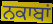
ਨਕਾਬਾਂ